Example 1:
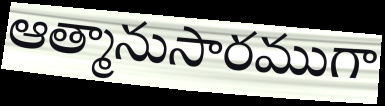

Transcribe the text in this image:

ఆత్మానుసారముగా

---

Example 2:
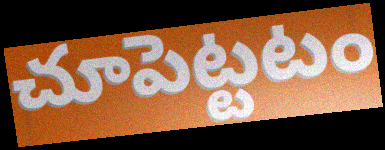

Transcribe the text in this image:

చూపెట్టటం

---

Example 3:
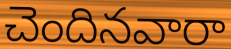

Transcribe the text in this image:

చెందినవారా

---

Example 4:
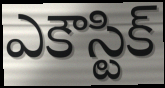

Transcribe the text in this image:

ఎకౌస్టిక్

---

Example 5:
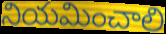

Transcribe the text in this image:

నియమించాలి